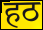
हठ